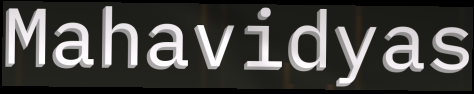
Mahavidyas